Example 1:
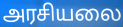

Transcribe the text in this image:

அரசியலை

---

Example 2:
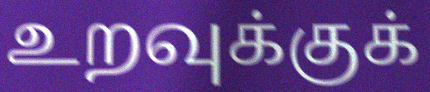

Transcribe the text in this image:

உறவுக்குக்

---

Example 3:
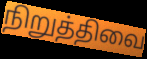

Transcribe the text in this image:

நிறுத்திவை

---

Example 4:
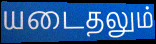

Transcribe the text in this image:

யடைதலும்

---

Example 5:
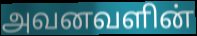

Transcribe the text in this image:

அவனவளின்